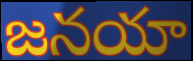
జనయా